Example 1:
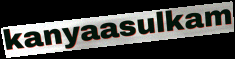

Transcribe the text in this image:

kanyaasulkam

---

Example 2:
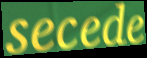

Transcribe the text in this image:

secede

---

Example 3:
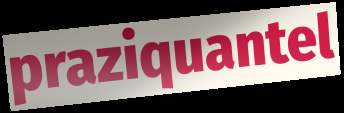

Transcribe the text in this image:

praziquantel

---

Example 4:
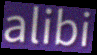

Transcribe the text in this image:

alibi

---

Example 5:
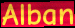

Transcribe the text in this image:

Alban